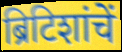
ब्रिटिशांचें